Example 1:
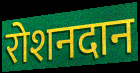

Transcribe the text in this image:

रोशनदान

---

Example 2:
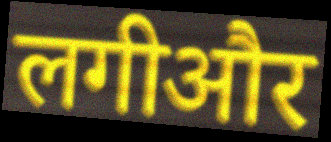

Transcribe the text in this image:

लगीऔर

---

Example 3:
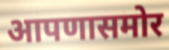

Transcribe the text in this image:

आपणासमोर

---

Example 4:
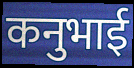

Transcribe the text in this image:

कनुभाई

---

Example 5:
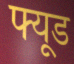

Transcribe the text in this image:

फ्यूड